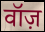
वॉज़